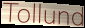
Tollund